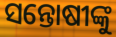
ସନ୍ତୋଷୀଙ୍କୁ